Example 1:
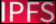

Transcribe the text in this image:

IPFS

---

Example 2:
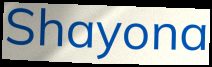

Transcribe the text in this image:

Shayona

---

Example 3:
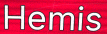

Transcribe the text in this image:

Hemis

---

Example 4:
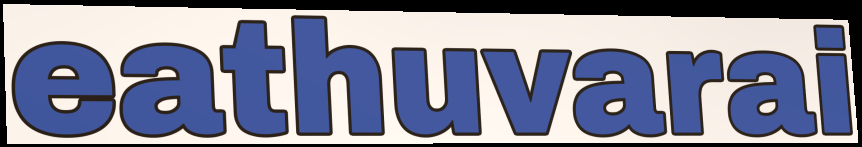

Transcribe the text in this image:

eathuvarai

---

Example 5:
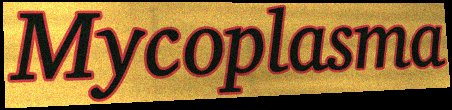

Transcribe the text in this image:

Mycoplasma